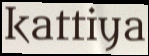
kattiya